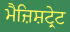
ਮੈਜ਼ਿਸ਼ਟ੍ਰੇਟ